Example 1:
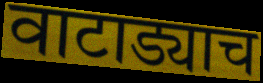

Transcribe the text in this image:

वाटाड्याच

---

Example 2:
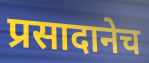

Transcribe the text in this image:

प्रसादानेच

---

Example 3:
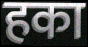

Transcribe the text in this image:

हका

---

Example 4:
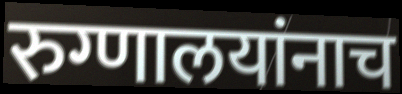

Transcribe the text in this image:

रुग्णालयांनाच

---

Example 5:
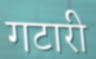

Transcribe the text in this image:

गटारी